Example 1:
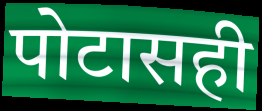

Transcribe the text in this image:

पोटासही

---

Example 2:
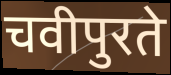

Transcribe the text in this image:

चवीपुरते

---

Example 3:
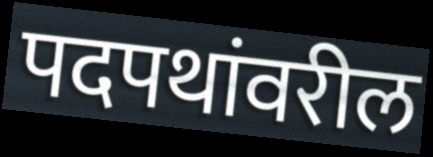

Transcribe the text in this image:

पदपथांवरील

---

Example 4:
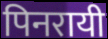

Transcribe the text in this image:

पिनरायी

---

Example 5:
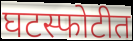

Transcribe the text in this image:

घटस्फोटीत